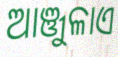
ଆଞ୍ଜୁଳାଏ